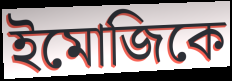
ইমোজিকে